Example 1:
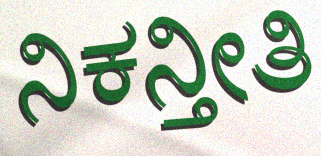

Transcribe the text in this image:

ನಿಕನ್ತೀತಿ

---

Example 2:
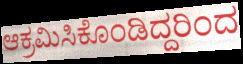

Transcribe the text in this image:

ಆಕ್ರಮಿಸಿಕೊಂಡಿದ್ದರಿಂದ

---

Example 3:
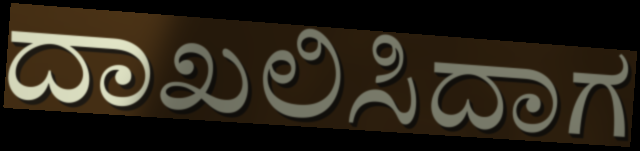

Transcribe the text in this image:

ದಾಖಲಿಸಿದಾಗ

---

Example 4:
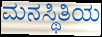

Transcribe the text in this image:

ಮನಸ್ಥಿತಿಯ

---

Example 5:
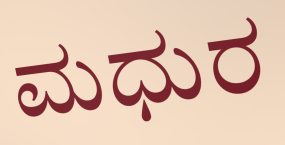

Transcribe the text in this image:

ಮಧುರ